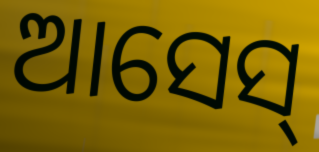
ଆସେସ୍